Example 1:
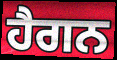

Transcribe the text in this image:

ਹੈਗਨ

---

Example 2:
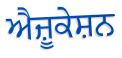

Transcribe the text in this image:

ਐਜ਼ੂਕੇਸ਼ਨ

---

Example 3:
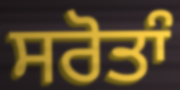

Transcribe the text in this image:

ਸਰੋਤਾੰ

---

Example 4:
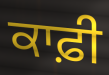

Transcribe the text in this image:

ਕਾਫ਼ੀ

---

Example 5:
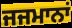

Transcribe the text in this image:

ਜਜਮਾਨਾਂ